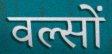
वल्सों